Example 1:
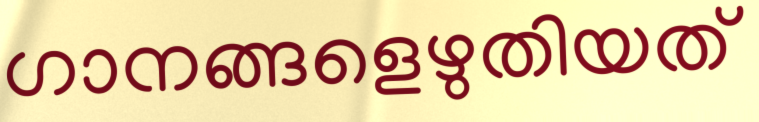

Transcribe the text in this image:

ഗാനങ്ങളെഴുതിയത്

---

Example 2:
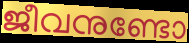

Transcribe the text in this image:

ജീവനുണ്ടോ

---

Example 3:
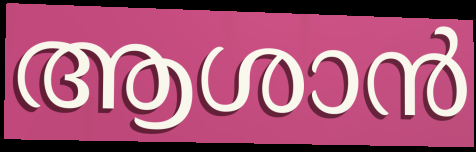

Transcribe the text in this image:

ആശാൻ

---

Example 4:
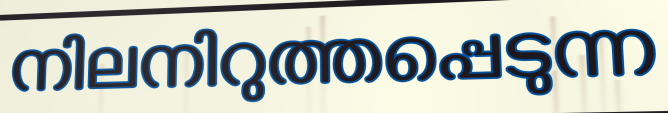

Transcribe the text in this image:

നിലനിറുത്തപ്പെടുന്ന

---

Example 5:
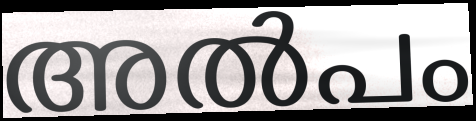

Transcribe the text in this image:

അൽപം